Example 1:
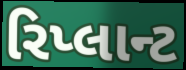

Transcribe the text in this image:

રિપ્લાન્ટ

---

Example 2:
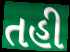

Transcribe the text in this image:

તહી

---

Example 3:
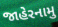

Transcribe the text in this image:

જાહેરનામુ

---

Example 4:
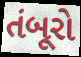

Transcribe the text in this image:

તંબૂરો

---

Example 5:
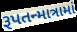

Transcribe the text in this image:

રૂપતન્માત્રામાં